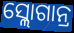
ସ୍ଲୋଗାନ୍ର